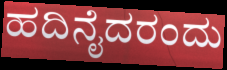
ಹದಿನೈದರಂದು